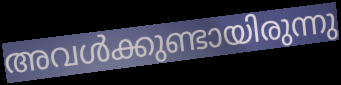
അവൾക്കുണ്ടായിരുന്നു